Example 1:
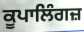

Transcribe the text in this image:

ਕੂਪਾਲਿੰਗਜ਼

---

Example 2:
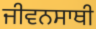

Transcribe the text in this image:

ਜੀਵਨਸਾਥੀ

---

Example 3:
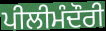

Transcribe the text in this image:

ਪੀਲੀਮੰਦੌਰੀ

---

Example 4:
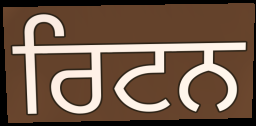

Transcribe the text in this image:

ਰਿਟਨ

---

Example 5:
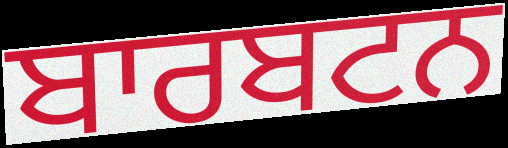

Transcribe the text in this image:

ਬਾਰਬਟਨ